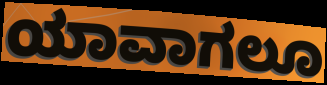
ಯಾವಾಗಲೂ